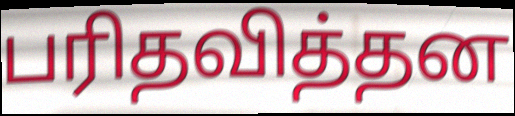
பரிதவித்தன